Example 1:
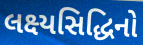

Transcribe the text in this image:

લક્ષ્યસિદ્ધિનો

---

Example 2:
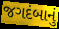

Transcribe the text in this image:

જગદંબાનું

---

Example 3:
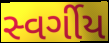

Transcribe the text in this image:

સ્વર્ગીય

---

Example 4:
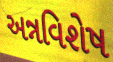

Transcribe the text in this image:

અન્નવિશેષ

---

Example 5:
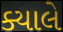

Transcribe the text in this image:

ક્યાલે